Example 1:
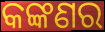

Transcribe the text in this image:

କଙ୍କଣର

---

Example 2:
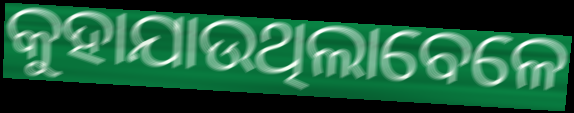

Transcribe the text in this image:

କୁହାଯାଉଥିଲାବେଳେ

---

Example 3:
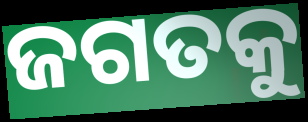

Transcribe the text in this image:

ଜଗତକୁ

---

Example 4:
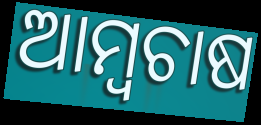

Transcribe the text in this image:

ଆମ୍ୱଚାଷ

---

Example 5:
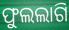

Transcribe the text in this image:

ଫୁଲଲାଗି